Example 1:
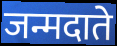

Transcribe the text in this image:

जन्मदाते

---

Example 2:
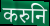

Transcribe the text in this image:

करुनि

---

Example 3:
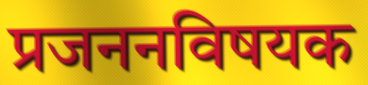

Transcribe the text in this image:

प्रजननविषयक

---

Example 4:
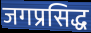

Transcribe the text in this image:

जगप्रसिद्ध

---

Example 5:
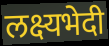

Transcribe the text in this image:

लक्ष्यभेदी